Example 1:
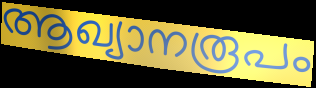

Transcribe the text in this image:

ആഖ്യാനരൂപം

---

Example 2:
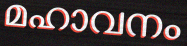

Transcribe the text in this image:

മഹാവനം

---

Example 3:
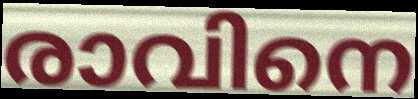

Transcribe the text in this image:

രാവിനെ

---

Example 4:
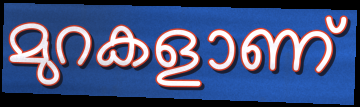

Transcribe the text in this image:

മുറകളാണ്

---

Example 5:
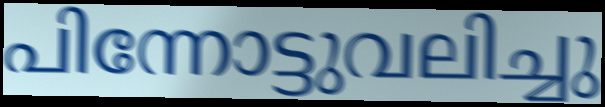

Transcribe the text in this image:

പിന്നോട്ടുവലിച്ചു